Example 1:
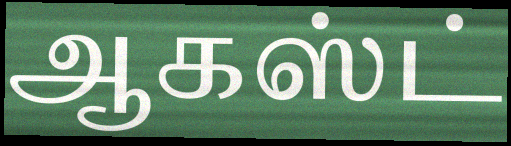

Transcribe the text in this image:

ஆகஸ்ட்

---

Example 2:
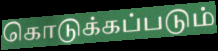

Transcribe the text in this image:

கொடுக்கப்படும்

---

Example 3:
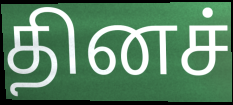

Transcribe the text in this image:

தினச்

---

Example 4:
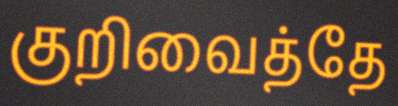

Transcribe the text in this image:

குறிவைத்தே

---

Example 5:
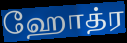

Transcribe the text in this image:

ஹோத்ர